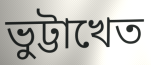
ভুট্টাখেত